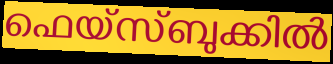
ഫെയ്സ്ബുക്കിൽ